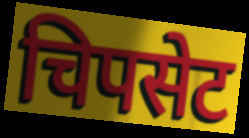
चिपसेट